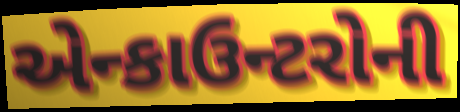
એન્કાઉન્ટરોની